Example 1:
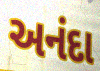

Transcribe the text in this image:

અનંદા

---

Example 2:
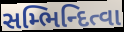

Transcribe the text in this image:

સમ્ભિન્દિત્વા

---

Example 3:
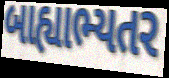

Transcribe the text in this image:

બાહ્યાભ્યતર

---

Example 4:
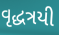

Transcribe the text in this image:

વૃદ્ધત્રયી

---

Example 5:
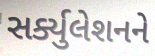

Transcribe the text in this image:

સર્ક્યુલેશનને